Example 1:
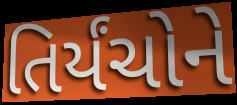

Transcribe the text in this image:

તિર્યંચોને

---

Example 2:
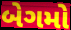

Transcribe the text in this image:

બેગમો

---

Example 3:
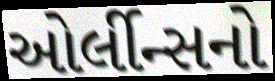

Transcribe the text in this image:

ઓર્લીન્સનો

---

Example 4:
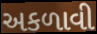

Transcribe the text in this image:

અકળાવી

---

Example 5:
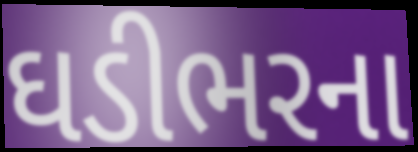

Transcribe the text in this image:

ઘડીભરના